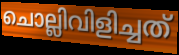
ചൊല്ലിവിളിച്ചത്